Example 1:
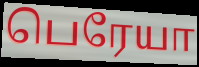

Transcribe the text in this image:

பெரேயா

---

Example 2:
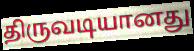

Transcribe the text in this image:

திருவடியானது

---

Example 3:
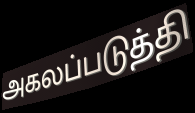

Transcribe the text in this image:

அகலப்படுத்தி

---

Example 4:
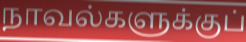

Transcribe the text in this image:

நாவல்களுக்குப்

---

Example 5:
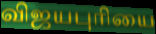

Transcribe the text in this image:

விஜயபுரியை